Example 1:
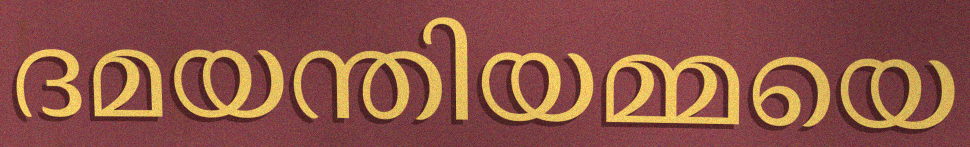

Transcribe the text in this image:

ദമയന്തിയമ്മയെ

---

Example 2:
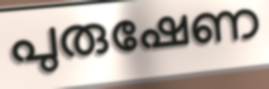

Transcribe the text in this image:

പുരുഷേണ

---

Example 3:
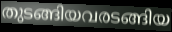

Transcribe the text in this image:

തുടങ്ങിയവരടങ്ങിയ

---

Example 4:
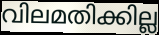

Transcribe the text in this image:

വിലമതിക്കില്ല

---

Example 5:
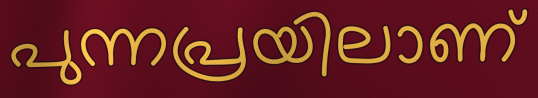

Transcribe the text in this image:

പുന്നപ്രയിലാണ്